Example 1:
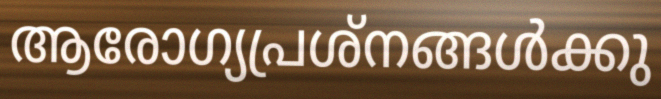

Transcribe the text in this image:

ആരോഗ്യപ്രശ്നങ്ങൾക്കു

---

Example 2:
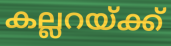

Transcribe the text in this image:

കല്ലറയ്ക്ക്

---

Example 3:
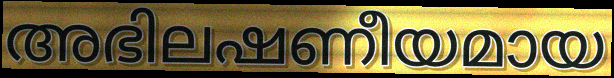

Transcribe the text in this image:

അഭിലഷണീയമായ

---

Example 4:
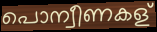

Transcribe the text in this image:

പൊന്വീണകള്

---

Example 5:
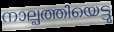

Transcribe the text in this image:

നാല്പത്തിയെട്ടു